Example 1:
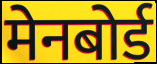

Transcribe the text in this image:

मेनबोर्ड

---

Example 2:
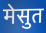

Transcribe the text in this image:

मेसुत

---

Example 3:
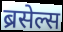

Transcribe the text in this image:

ब्रसेल्स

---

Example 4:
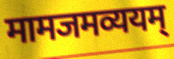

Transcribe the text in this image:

मामजमव्ययम्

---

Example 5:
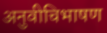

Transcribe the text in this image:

अनुवीचिभाषण